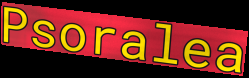
Psoralea